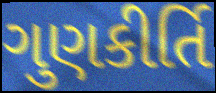
ગુણકીર્તિ